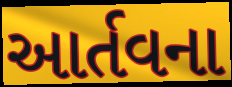
આર્તવના